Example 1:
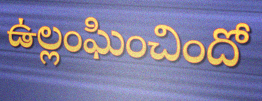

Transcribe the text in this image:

ఉల్లంఘించిందో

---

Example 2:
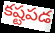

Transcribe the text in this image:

కష్టపడ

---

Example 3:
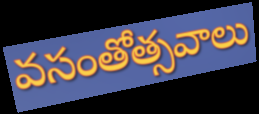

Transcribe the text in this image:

వసంతోత్సవాలు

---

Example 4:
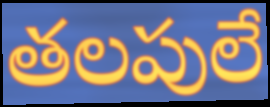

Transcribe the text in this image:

తలపులే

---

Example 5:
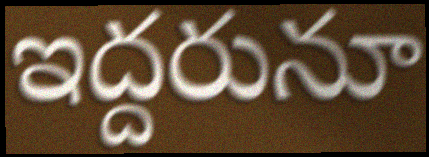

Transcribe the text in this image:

ఇద్దరునూ